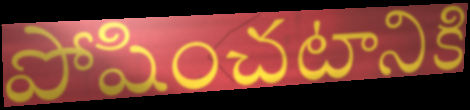
పోషించటానికి